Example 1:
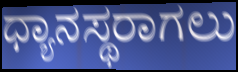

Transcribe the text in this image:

ಧ್ಯಾನಸ್ಥರಾಗಲು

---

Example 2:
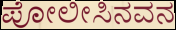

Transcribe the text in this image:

ಪೋಲೀಸಿನವನ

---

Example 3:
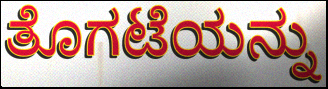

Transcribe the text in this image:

ತೊಗಟೆಯನ್ನು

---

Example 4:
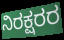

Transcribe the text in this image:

ನಿರಕ್ಷರರ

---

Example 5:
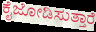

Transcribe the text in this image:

ಕೈಜೋಡಿಸುತ್ತಾರೆ